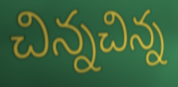
చిన్నచిన్న